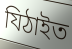
যিঠাইত